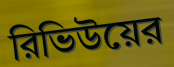
রিভিউয়ের